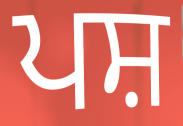
ਪਸ਼